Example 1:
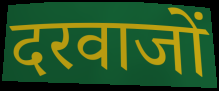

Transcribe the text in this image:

दरवाजों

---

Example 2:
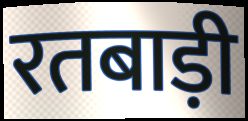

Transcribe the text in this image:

रतबाड़ी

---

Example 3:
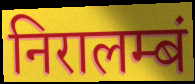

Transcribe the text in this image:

निरालम्बं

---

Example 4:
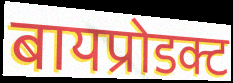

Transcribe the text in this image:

बायप्रोडक्ट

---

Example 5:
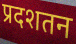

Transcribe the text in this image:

प्रदशतन